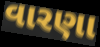
વારણા